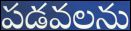
పడవలను